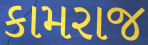
કામરાજ